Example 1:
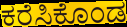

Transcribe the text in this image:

ಕರೆಸಿಕೊಂಡ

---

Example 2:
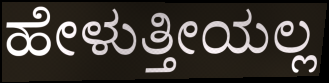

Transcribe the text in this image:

ಹೇಳುತ್ತೀಯಲ್ಲ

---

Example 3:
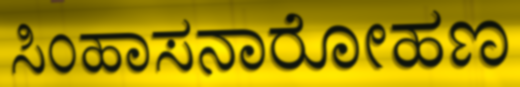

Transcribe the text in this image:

ಸಿಂಹಾಸನಾರೋಹಣ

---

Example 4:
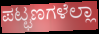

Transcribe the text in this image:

ಪಟ್ಟಣಗಳೆಲ್ಲಾ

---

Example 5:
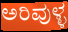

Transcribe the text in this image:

ಅರಿವುಳ್ಳ